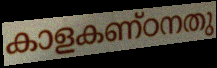
കാളകണ്ഠനതു